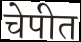
चेपीत